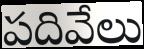
పదివేలు